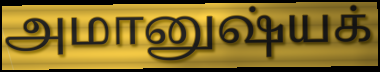
அமானுஷ்யக்